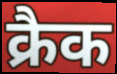
क्रैक